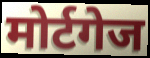
मोर्टगेज